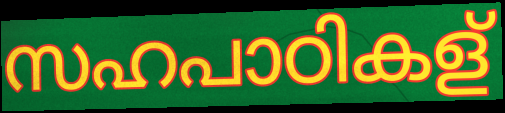
സഹപാഠികള്